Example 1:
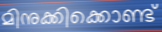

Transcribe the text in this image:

മിനുക്കിക്കൊണ്ട്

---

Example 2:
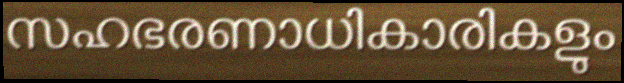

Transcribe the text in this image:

സഹഭരണാധികാരികളും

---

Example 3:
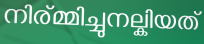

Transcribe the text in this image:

നിര്മ്മിച്ചുനല്കിയത്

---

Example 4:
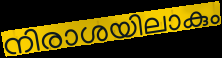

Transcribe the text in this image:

നിരാശയിലാകും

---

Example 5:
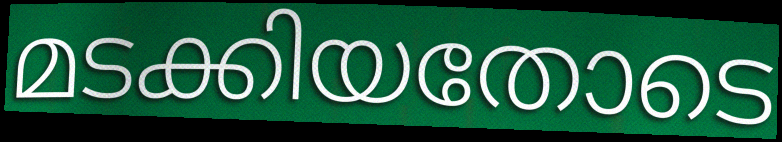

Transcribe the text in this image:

മടക്കിയതോടെ